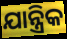
ଯାନ୍ତ୍ରିକ